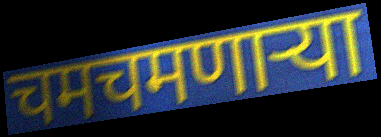
चमचमणाऱ्या